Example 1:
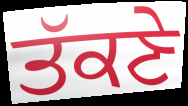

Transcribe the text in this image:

ਤੱਕਣੇ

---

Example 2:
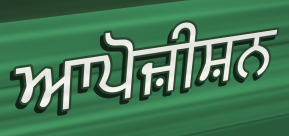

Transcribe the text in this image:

ਆਪੋਜ਼ੀਸ਼ਨ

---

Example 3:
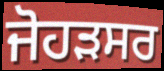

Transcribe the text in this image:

ਜੋਹੜਸਰ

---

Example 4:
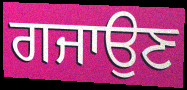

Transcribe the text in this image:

ਗਜਾਉਣ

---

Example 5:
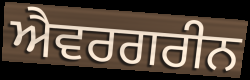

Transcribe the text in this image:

ਐਵਰਗਰੀਨ